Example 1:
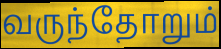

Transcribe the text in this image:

வருந்தோறும்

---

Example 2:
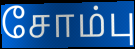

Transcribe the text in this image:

சோம்பு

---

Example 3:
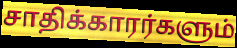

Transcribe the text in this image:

சாதிக்காரர்களும்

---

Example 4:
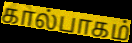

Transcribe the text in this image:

கால்பாகம்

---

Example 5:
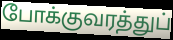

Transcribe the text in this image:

போக்குவரத்துப்